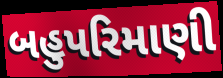
બહુપરિમાણી